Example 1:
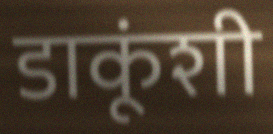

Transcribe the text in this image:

डाकूंशी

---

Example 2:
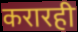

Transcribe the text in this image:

करारही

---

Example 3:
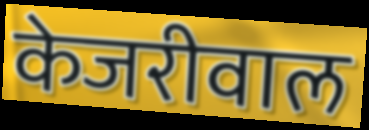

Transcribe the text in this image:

केजरीवाल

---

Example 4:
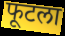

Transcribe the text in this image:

फूटला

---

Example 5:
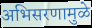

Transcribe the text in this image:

अभिसरणामुळे